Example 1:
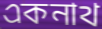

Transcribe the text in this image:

একনাথ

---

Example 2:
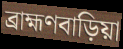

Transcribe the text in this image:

ব্রাহ্মণবাড়িয়া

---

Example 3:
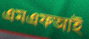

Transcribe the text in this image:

এমএফআই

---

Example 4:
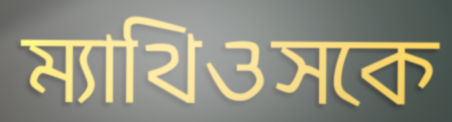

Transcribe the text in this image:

ম্যাথিওসকে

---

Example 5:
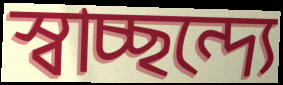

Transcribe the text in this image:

স্বাচ্ছন্দ্যে